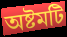
অষ্টমটি